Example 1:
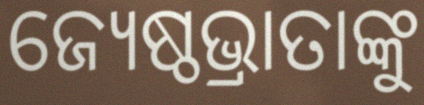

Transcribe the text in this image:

ଜ୍ୟେଷ୍ଠଭ୍ରାତାଙ୍କୁ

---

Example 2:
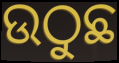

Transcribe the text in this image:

ଉଠୁଛ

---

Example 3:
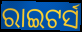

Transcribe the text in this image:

ରାଇଟର୍ସ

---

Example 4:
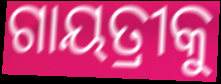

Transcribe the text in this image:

ଗାୟତ୍ରୀକୁ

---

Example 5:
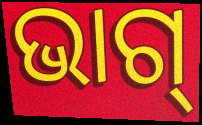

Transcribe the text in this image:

ଭାଗ୍